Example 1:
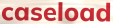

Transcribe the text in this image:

caseload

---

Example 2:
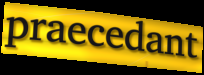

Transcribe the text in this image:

praecedant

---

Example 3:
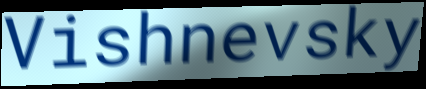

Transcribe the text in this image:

Vishnevsky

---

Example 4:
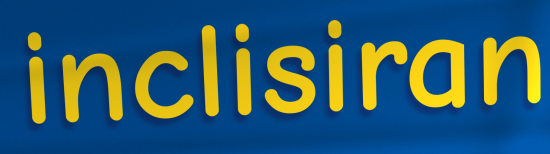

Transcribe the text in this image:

inclisiran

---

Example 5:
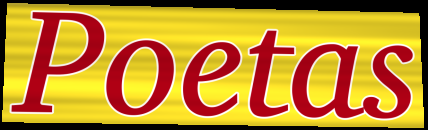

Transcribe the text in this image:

Poetas